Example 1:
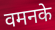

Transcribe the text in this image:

वमनके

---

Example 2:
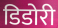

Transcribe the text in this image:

डिडोरी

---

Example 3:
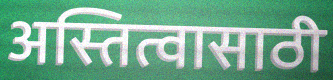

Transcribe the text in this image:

अस्तित्वासाठी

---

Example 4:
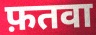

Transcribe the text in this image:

फ़तवा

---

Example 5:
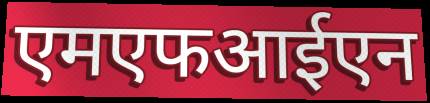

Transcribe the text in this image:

एमएफआईएन